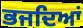
ਭਜਦਿਆਂ